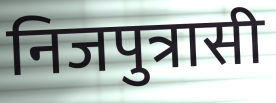
निजपुत्रासी